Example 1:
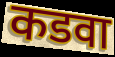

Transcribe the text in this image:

कडवा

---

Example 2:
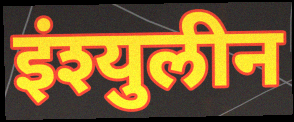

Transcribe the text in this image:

इंश्युलीन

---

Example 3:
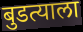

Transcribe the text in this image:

बुडत्याला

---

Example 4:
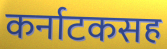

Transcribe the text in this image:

कर्नाटकसह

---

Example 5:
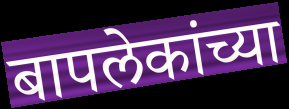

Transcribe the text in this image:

बापलेकांच्या